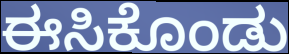
ಈಸಿಕೊಂಡು